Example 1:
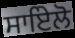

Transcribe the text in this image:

ਸਾਇੇਲੋ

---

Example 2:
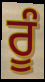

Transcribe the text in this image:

ਰੂੰ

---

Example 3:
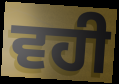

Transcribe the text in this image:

ਵਹੀ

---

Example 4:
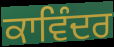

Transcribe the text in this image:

ਕਾਵਿੰਦਰ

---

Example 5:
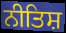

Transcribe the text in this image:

ਨੀਤਿਸ਼